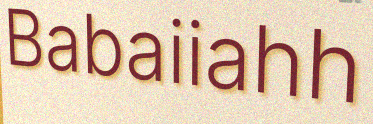
Babaiiahh